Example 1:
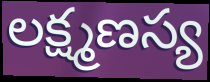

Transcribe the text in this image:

లక్ష్మణస్య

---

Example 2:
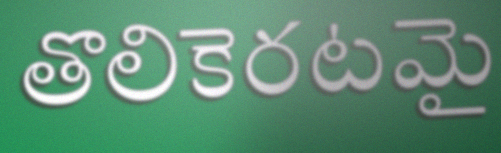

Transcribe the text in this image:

తొలికెరటమై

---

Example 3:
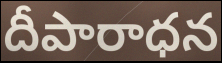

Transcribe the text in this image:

దీపారాధన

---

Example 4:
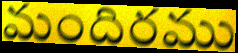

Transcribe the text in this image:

మందిరము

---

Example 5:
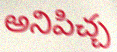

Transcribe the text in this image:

అనిపిచ్చ